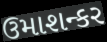
ઉમાશન્કર